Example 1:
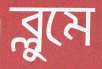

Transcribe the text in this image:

ব্লুমে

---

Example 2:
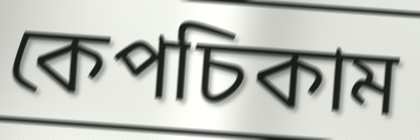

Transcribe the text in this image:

কেপচিকাম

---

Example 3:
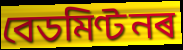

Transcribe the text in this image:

বেডমিণ্টনৰ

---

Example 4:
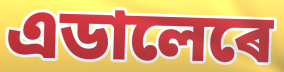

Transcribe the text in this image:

এডালেৰে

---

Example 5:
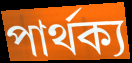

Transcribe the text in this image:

পাৰ্থক্য